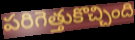
పరిగెత్తుకొచ్చింది